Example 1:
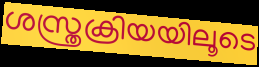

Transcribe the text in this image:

ശസ്ത്രക്രിയയിലൂടെ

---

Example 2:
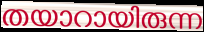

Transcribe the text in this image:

തയാറായിരുന്ന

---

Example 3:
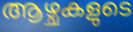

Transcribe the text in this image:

ആഴ്ചകളുടെ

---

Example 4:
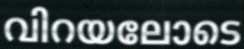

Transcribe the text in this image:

വിറയലോടെ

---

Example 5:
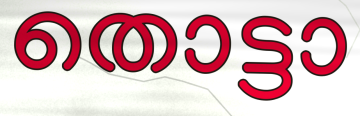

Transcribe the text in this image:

തൊട്ടാ